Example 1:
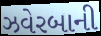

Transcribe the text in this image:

ઝવેરબાની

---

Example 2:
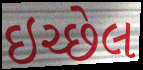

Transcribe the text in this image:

ઇચ્છેલ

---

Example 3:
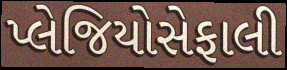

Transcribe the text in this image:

પ્લેજિયોસેફાલી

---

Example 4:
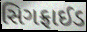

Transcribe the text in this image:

સિગફ્રાઈડ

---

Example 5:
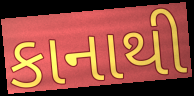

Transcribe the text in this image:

કાનાથી